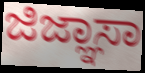
ಜಿಜ್ಞಾಸಾ